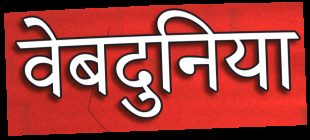
वेबदुनिया